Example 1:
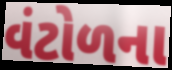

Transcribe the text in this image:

વંટોળના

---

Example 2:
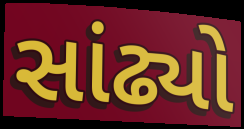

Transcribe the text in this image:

સાંઢ્યો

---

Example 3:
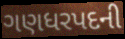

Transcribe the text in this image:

ગણધરપદની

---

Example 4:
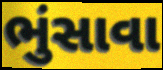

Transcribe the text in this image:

ભુંસાવા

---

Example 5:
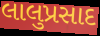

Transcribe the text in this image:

લાલુપ્રસાદ